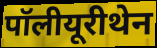
पॉलीयूरीथेन